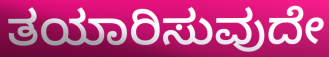
ತಯಾರಿಸುವುದೇ